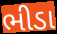
ભીડા